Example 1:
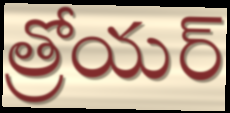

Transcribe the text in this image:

త్రోయర్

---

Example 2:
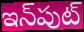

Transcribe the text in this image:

ఇన్‌పుట్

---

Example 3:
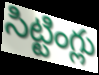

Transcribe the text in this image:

సిట్టింగ్లు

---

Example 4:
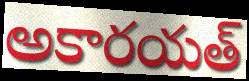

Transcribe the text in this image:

అకారయత్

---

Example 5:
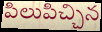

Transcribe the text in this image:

పిలుపిచ్చిన